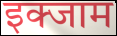
इक्जाम